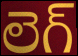
లెగ్